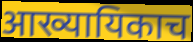
आख्यायिकाच